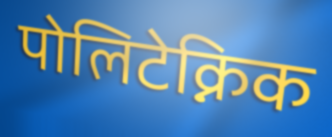
पोलिटेक्निक